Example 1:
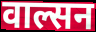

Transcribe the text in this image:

वाल्सन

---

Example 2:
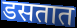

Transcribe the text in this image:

डसतात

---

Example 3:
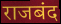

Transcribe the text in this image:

राजबंद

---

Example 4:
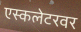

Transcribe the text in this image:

एस्कलेटरवर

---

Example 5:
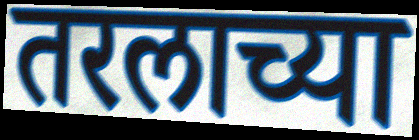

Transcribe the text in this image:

तरलाच्या